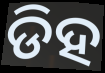
ଡିହ